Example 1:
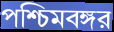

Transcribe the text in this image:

পশ্চিমবঙ্গর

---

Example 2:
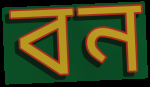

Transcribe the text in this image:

বন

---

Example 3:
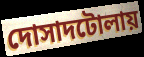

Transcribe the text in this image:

দোসাদটোলায়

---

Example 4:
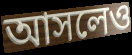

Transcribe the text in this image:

আসলেও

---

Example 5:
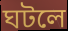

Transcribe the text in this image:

ঘটলে